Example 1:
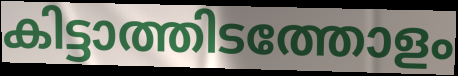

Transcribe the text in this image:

കിട്ടാത്തിടത്തോളം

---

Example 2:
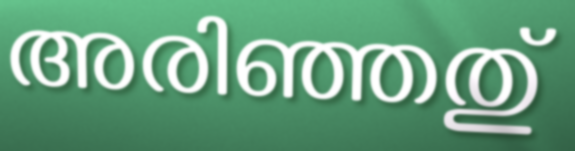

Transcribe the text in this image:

അരിഞ്ഞതു്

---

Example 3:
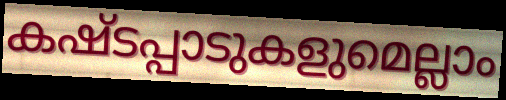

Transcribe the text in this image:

കഷ്ടപ്പാടുകളുമെല്ലാം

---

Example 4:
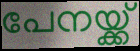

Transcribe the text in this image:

പേനയ്ക്ക്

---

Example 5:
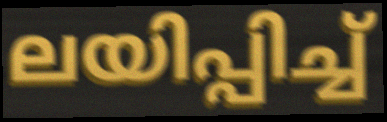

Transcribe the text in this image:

ലയിപ്പിച്ച്